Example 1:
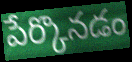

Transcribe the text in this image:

పేర్కొనడం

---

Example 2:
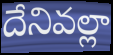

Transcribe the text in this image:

దేనివల్లా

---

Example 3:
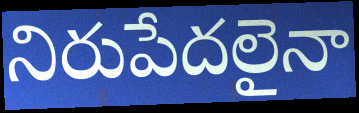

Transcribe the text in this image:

నిరుపేదలైనా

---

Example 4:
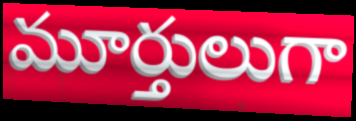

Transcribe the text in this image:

మూర్తులుగా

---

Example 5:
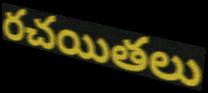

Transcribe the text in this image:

రచయితలు